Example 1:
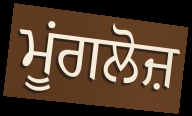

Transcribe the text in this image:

ਮੂਂਗਲੋਜ਼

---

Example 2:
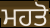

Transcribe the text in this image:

ਮਹਤੋ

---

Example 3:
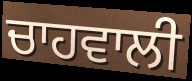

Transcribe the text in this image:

ਚਾਹਵਾਲੀ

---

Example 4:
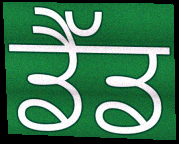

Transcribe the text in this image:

ਡੈੱਡ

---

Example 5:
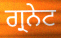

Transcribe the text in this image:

ਗ੍ਰਨੇਟ